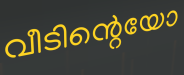
വീടിന്റെയോ